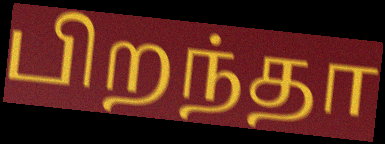
பிறந்தா